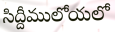
సిద్దీములోయలో